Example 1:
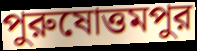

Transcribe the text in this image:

পুরুষোত্তমপুর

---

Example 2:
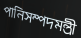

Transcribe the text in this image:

পানিসম্পদমন্ত্রী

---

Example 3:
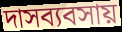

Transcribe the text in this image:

দাসব্যবসায়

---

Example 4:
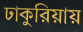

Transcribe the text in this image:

ঢাকুরিয়ায়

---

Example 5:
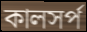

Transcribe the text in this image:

কালসর্প